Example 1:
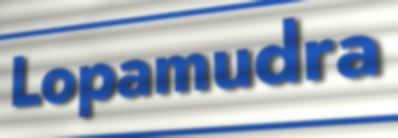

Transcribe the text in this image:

Lopamudra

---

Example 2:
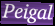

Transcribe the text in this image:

Peigal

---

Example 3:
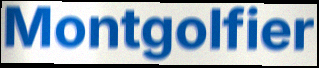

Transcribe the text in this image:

Montgolfier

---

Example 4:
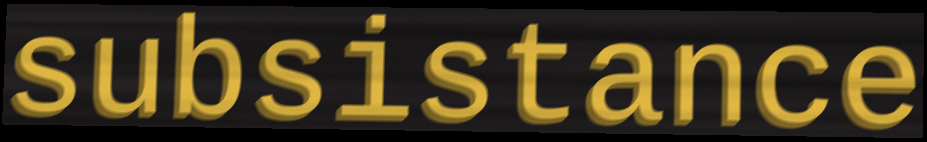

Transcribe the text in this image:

subsistance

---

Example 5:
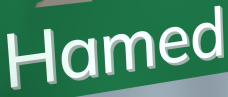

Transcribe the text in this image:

Hamed